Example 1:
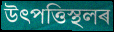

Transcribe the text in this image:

উৎপত্তিস্থলৰ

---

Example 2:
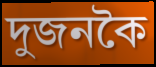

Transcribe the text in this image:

দুজনকৈ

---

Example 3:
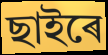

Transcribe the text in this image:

ছাইৰে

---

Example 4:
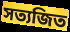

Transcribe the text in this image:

সত্যজিত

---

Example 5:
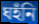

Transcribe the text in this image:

ঘহঁনি